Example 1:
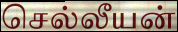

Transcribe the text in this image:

செல்லீயன்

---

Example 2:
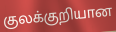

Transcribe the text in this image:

குலக்குறியான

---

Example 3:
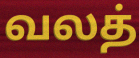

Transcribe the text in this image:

வலத்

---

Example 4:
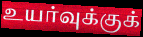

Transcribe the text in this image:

உயர்வுக்குக்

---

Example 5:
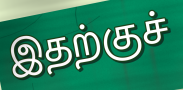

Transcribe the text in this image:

இதற்குச்